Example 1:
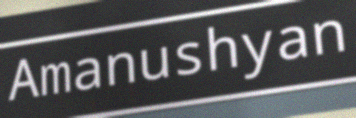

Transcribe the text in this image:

Amanushyan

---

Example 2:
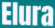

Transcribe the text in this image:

Elura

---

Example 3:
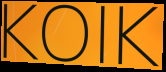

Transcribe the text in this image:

KOIK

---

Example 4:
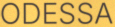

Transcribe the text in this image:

ODESSA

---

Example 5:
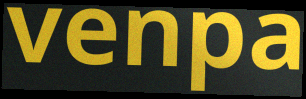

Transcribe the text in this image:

venpa